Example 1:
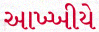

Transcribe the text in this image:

આખ્ખીયે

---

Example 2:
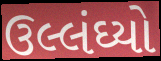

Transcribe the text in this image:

ઉલ્લંઘ્યો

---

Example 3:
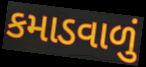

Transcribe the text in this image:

કમાડવાળું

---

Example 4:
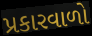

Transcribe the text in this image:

પ્રકારવાળો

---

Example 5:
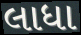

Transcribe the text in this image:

લાધા